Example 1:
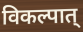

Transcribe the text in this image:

विकल्पात्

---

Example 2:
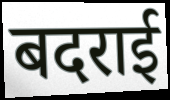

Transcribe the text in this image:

बदराई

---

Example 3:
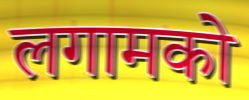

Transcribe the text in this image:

लगामको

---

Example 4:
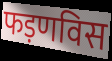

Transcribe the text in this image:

फड़णविस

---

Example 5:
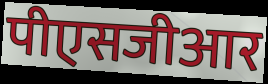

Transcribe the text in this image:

पीएसजीआर